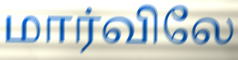
மார்விலே